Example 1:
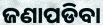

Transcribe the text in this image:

ଜଣାପଡିବା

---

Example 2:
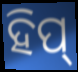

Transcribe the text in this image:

ହିପ୍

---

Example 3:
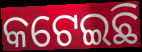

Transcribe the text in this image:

କଟେଇଛି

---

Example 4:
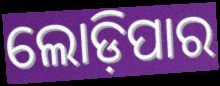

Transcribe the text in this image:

ଲୋଡ଼ିପାର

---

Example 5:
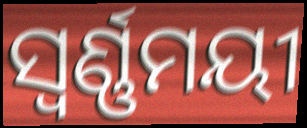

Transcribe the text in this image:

ସ୍ୱର୍ଣ୍ଣମୟୀ